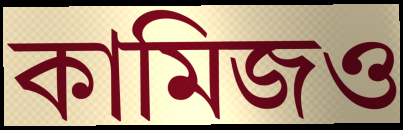
কামিজও